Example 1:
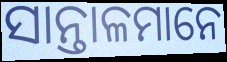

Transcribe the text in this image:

ସାନ୍ତାଳମାନେ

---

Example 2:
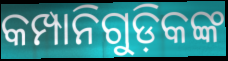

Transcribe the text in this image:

କମ୍ପାନିଗୁଡ଼ିକଙ୍କ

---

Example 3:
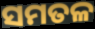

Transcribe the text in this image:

ସମତଳ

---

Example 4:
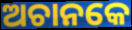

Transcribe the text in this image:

ଅଚାନକେ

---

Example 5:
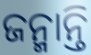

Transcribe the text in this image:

ଜନ୍ମାନ୍ତି